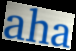
aha